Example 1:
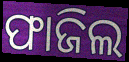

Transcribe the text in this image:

ଫାଜିଲ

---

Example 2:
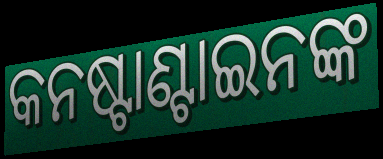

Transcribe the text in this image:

କନଷ୍ଟାଣ୍ଟାଇନଙ୍କ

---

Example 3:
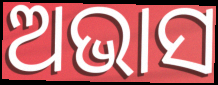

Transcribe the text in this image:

ଅଭାସ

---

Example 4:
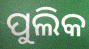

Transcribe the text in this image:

ପୁଲିକ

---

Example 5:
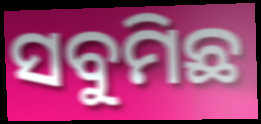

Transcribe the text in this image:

ସବୁମିଛ